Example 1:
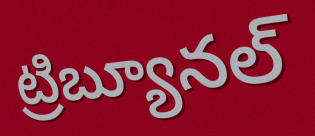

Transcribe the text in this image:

ట్రిబ్యూనల్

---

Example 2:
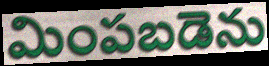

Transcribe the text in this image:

మింపబడెను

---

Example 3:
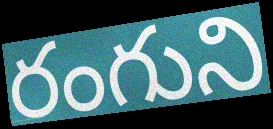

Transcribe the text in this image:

రంగుని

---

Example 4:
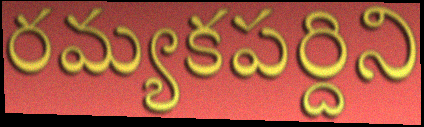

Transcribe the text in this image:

రమ్యకపర్దిని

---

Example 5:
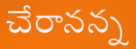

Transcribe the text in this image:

చేరానన్న